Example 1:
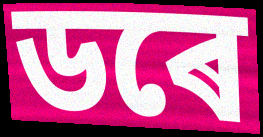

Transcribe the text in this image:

ডৰে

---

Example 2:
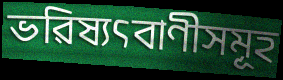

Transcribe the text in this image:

ভৱিষ্যৎবাণীসমূহ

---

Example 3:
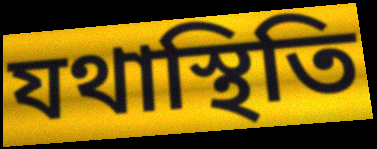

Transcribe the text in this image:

যথাস্থিতি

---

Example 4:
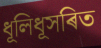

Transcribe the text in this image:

ধূলিধূসৰিত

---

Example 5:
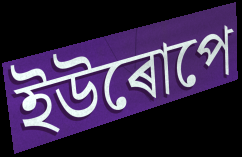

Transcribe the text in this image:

ইউৰোপে